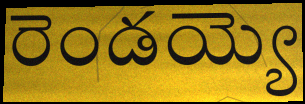
రెండయ్యె